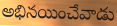
అభినయించేవాడు